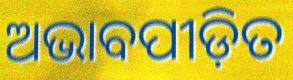
ଅଭାବପୀଡ଼ିତ